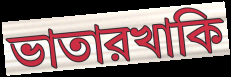
ভাতারখাকি